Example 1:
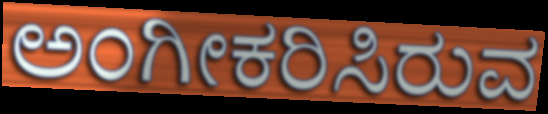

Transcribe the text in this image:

ಅಂಗೀಕರಿಸಿರುವ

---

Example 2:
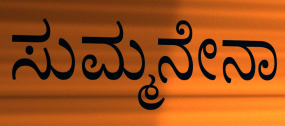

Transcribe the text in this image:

ಸುಮ್ಮನೇನಾ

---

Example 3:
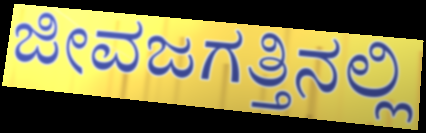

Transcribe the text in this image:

ಜೀವಜಗತ್ತಿನಲ್ಲಿ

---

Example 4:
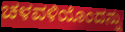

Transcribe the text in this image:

ಚಳವಳಿಯೊಂದನ್ನು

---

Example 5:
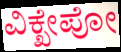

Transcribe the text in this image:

ವಿಕ್ಖೇಪೋ